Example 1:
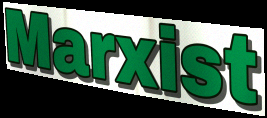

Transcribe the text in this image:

Marxist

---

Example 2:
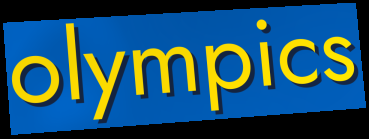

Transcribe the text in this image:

olympics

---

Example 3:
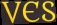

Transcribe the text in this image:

VES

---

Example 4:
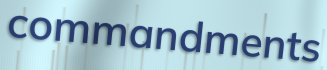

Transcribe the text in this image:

commandments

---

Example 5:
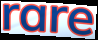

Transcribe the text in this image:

rare